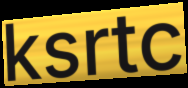
ksrtc